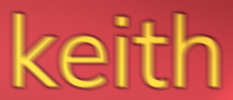
keith